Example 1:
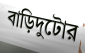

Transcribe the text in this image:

বাড়িদুটোর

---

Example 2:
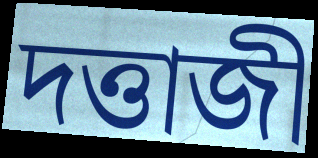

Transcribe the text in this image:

দত্তাজী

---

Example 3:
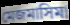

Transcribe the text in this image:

মেজমাসিমা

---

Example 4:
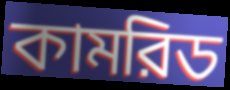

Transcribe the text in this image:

কামরিড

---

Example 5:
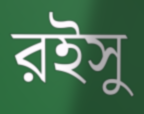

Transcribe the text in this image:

রইসু